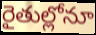
రైతుల్లోనూ